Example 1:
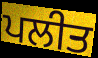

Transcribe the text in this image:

ਪਲੀਤ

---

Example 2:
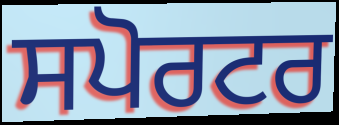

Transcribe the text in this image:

ਸਪੋਰਟਰ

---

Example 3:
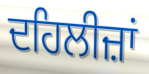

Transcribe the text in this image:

ਦਹਿਲੀਜ਼ਾਂ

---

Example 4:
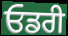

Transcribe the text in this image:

ਓਡਰੀ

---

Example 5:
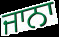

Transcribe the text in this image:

ਜਾਨਾ